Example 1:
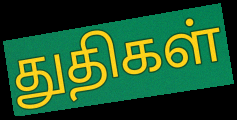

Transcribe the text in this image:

துதிகள்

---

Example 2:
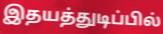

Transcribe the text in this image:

இதயத்துடிப்பில்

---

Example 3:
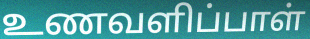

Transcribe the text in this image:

உணவளிப்பாள்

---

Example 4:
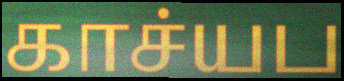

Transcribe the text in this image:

காச்யப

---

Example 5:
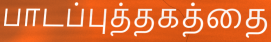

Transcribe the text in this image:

பாடப்புத்தகத்தை